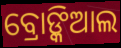
ବ୍ରୋଙ୍କିଆଲ